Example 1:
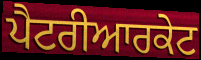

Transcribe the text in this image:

ਪੈਟਰੀਆਰਕੇਟ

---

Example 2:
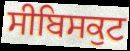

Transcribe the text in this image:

ਸੀਬਿਸਕੁਟ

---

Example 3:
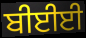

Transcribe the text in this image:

ਬੀਈਈ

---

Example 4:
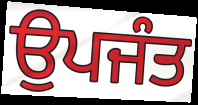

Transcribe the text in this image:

ਉਪਜੰਤ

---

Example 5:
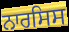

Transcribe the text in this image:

ਨਾਰਸਿਸ